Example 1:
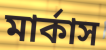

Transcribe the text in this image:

মার্কাস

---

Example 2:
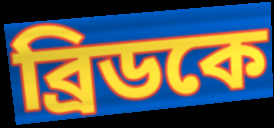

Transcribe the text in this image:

ব্রিডকে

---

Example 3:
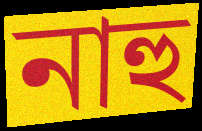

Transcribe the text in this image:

নাহু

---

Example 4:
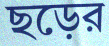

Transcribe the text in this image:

ছড়ের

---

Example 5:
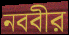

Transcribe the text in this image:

নববীর